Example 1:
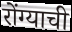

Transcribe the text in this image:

रोंग्याची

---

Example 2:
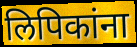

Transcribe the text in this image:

लिपिकांना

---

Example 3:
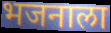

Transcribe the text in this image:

भजनाला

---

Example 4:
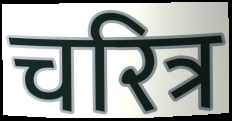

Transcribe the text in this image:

चरित्र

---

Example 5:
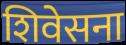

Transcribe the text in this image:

शिवेसना